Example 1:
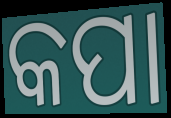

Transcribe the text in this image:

କପା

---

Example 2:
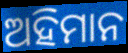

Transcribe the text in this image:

ଅହିମାନ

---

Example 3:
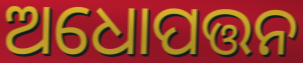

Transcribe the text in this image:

ଅଧୋପତ୍ତନ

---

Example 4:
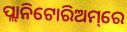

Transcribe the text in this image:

ପ୍ଲାନିଟୋରିଅମ୍‌ରେ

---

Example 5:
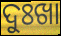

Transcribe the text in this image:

ଦୁଃଖା